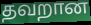
தவறான